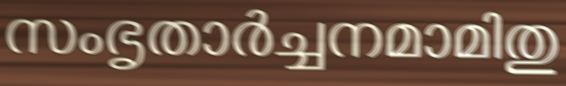
സംഭൃതാർച്ചനമാമിതു